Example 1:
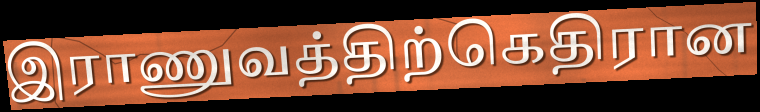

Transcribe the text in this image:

இராணுவத்திற்கெதிரான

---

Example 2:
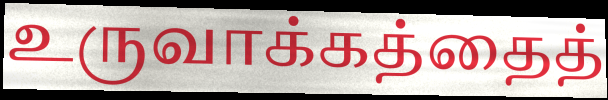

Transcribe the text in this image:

உருவாக்கத்தைத்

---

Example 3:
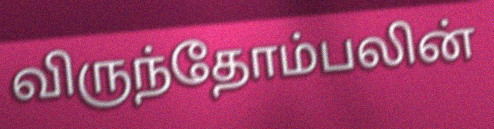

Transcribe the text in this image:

விருந்தோம்பலின்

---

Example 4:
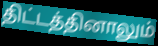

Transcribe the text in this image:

திட்டத்தினாலும்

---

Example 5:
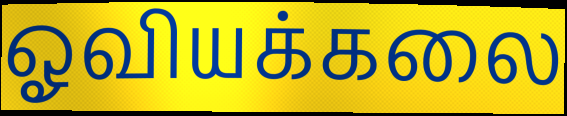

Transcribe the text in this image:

ஓவியக்கலை